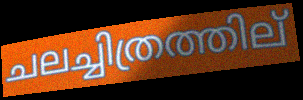
ചലച്ചിത്രത്തില്